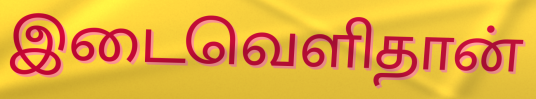
இடைவெளிதான்